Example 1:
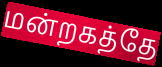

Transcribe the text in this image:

மன்றகத்தே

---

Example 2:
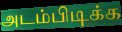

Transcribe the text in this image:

அடம்பிடிக்க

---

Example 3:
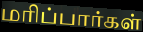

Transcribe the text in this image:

மரிப்பார்கள்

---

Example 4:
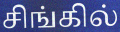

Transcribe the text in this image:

சிங்கில்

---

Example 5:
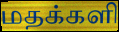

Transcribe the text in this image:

மதக்களி